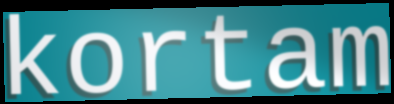
kortam